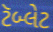
ટૅબ્લેટ